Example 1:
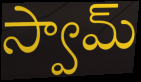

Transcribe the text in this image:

స్వామ్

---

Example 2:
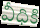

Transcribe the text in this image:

వీధికి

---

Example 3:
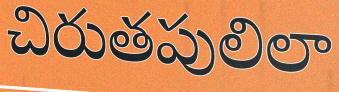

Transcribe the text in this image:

చిరుతపులిలా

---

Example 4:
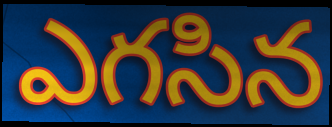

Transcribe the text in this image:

ఎగసిన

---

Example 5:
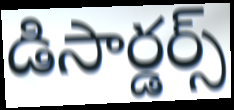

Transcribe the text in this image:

డిసార్డర్స్